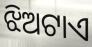
ଝିଅଟାଏ